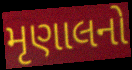
મૃણાલનો